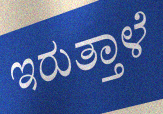
ಇರುತ್ತಾಳೆ